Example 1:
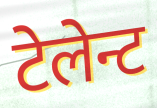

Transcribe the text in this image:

टेलेन्ट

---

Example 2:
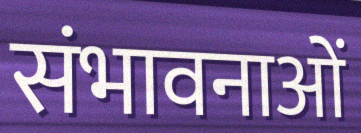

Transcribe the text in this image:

संभावनाओं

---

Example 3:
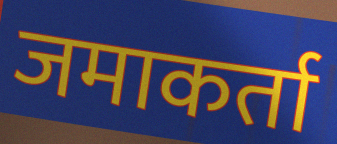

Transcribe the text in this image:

जमाकर्ता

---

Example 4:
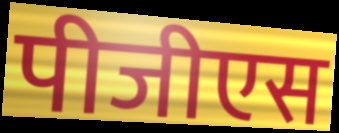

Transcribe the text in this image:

पीजीएस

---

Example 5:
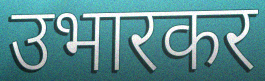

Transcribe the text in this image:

उभारकर